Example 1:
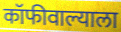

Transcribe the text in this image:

कॉफीवाल्याला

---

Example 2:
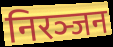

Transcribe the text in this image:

निरञ्जन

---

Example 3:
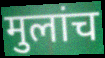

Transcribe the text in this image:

मुलांच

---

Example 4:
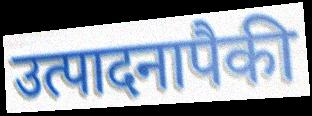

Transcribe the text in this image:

उत्पादनापैकी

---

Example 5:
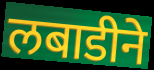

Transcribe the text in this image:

लबाडीने